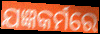
ଯଜ୍ଞକର୍ମରେ